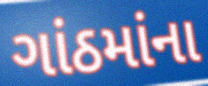
ગાંઠમાંના